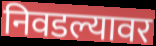
निवडल्यावर